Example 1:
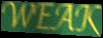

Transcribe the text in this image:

WEAK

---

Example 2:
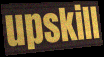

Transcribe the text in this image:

upskill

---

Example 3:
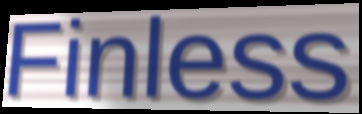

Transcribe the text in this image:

Finless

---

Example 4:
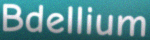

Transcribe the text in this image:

Bdellium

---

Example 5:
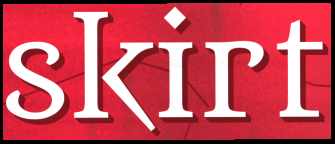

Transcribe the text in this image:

skirt